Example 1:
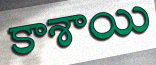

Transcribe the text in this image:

కాశాయి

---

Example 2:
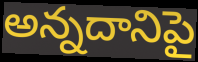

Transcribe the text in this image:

అన్నదానిపై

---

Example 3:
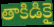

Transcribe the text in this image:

తాకిడికై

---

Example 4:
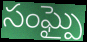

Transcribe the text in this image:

సంఘ్పై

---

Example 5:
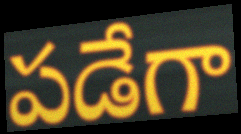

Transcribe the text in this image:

పడేగా